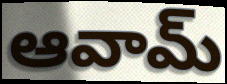
ఆవామ్